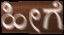
ಹೀಗೆ